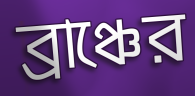
ব্রাঞ্চের